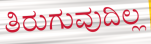
ತಿರುಗುವುದಿಲ್ಲ